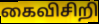
கைவிசிறி